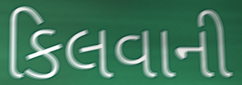
કિલવાની